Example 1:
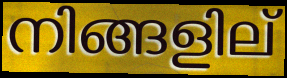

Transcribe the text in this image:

നിങ്ങളില്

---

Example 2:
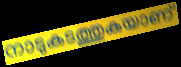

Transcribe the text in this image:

നാടുകടത്തുകയാണ്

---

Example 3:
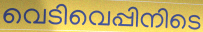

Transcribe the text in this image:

വെടിവെപ്പിനിടെ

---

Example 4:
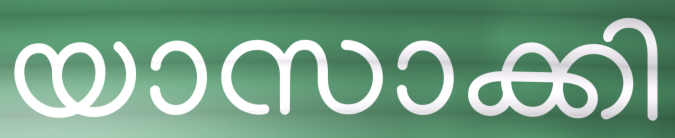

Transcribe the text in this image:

യാസാക്കി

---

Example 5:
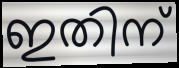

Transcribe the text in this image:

ഇതിന്